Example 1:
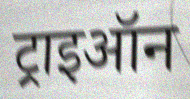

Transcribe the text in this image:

ट्राइऑन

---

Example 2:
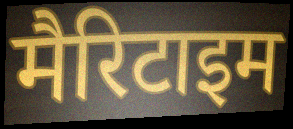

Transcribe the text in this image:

मैरिटाइम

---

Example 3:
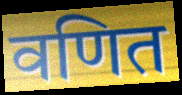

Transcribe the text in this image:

वणित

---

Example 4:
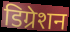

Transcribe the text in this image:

डिग्रेशन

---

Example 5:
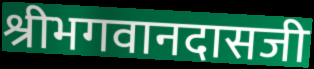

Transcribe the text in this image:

श्रीभगवानदासजी